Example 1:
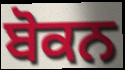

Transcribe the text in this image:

ਬੋਕਨ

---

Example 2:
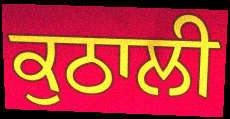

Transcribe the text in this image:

ਕੁਠਾਲੀ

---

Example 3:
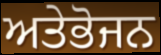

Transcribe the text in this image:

ਅਤੇਭੋਜਨ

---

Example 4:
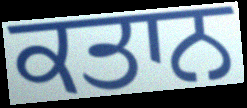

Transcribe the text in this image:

ਕਤਾਨ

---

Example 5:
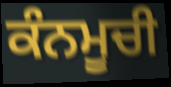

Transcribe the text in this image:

ਕੰਨਮੂਚੀ